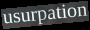
usurpation